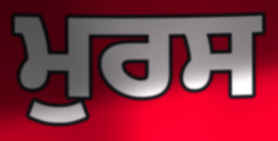
ਮੁਰਸ